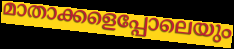
മാതാക്കളെപ്പോലെയും